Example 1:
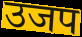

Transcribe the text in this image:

उजप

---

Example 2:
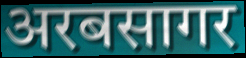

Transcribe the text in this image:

अरबसागर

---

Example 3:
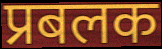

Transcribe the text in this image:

प्रबलक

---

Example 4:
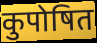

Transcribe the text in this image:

कुपोषित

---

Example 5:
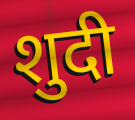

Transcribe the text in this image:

शुदी